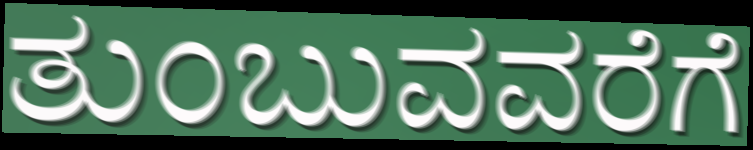
ತುಂಬುವವರೆಗೆ